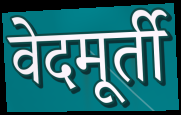
वेदमूर्ती